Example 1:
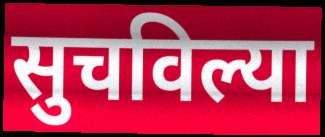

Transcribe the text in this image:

सुचविल्या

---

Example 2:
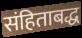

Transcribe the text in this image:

संहिताबद्ध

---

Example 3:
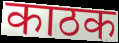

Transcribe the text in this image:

काठक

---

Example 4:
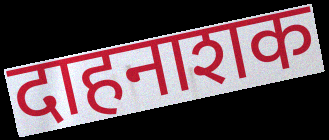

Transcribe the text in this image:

दाहनाशक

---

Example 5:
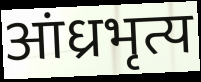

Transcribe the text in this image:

आंध्रभृत्य